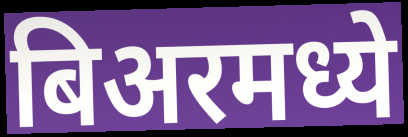
बिअरमध्ये